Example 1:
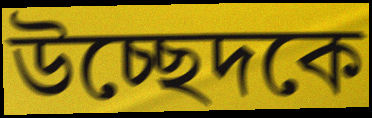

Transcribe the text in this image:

উচ্ছেদকে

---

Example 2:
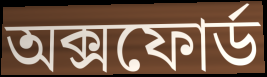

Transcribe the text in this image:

অক্সফোর্ড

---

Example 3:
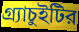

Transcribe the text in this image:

গ্র্যাচুইটির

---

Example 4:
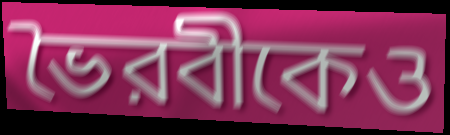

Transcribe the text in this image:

ভৈরবীকেও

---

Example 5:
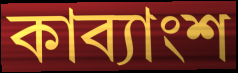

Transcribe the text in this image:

কাব্যাংশ